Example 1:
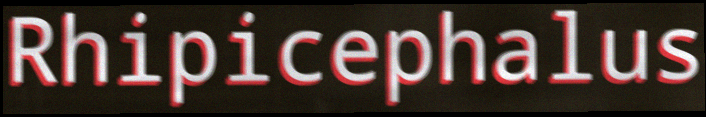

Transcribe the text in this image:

Rhipicephalus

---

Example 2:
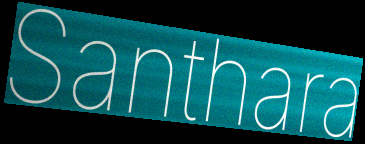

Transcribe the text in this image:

Santhara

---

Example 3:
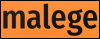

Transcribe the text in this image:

malege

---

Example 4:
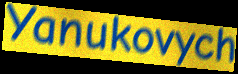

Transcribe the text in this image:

Yanukovych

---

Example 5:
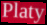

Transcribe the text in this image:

Platy